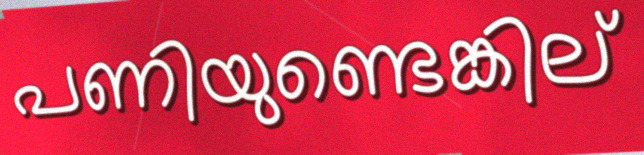
പണിയുണ്ടെങ്കില്